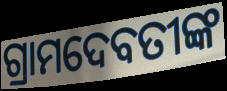
ଗ୍ରାମଦେବତୀଙ୍କ